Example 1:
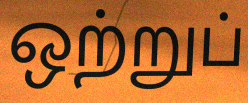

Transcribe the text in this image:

ஒற்றுப்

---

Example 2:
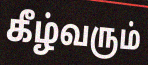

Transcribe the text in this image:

கீழ்வரும்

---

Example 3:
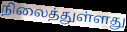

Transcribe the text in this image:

நிலைத்துள்ளது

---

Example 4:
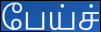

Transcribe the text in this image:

பேய்ச்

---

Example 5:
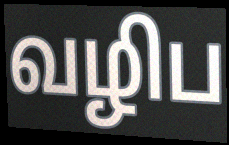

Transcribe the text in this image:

வழிப